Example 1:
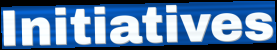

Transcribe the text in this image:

Initiatives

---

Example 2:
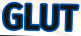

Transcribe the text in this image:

GLUT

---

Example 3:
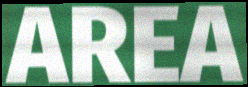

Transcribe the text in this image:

AREA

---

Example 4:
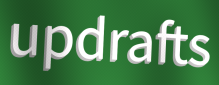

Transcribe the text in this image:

updrafts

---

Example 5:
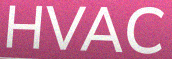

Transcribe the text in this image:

HVAC